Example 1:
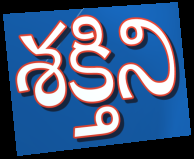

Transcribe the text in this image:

శక్తిని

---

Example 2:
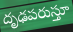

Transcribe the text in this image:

దృఢపరుస్తూ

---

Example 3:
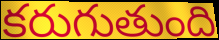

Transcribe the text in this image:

కరుగుతుంది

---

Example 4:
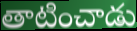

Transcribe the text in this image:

తాటించాడు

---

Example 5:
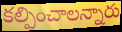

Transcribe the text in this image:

కల్పించాలన్నారు